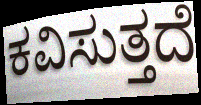
ಕವಿಸುತ್ತದೆ